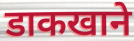
डाकखाने